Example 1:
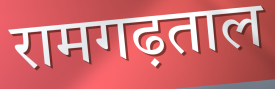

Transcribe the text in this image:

रामगढ़ताल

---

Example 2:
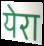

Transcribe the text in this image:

येरा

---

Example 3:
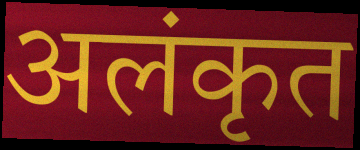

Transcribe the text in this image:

अलंकृत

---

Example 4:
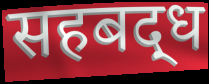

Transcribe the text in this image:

सहबद्ध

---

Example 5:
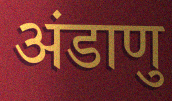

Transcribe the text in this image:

अंडाणु